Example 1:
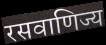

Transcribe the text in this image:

रसवाणिज्य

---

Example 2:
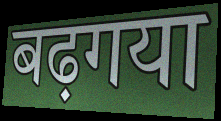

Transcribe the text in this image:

बढ़गया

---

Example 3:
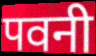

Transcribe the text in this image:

पवनी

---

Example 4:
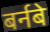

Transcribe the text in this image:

बर्नबे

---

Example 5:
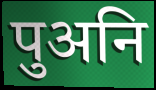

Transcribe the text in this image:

पुअनि